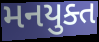
મનયુક્ત